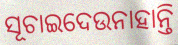
ସୂଚାଇଦେଉନାହାନ୍ତି